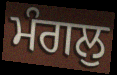
ਮੰਗਲੁ